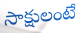
సాక్షులంటే